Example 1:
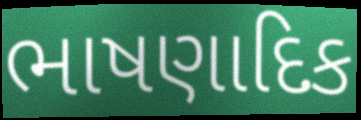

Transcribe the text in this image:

ભાષણાદિક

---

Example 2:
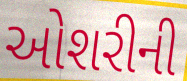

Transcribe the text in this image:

ઓશરીની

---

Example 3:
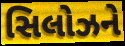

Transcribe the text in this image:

સિલોઝને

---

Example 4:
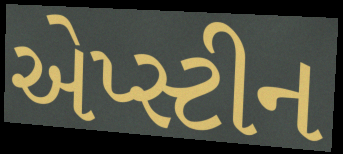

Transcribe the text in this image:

એપ્સ્ટીન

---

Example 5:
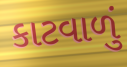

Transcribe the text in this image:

કાટવાળું